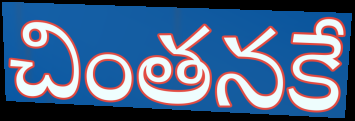
చింతనకే